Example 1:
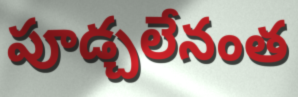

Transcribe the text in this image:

పూడ్చలేనంత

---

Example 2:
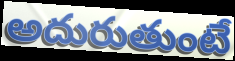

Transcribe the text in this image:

అదురుతుంటే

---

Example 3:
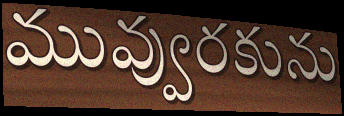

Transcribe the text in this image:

మువ్వురకును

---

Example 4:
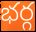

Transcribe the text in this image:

భర్గ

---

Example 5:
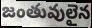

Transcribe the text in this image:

జంతువులైన